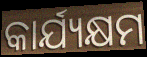
କାର୍ଯ୍ୟକ୍ଷମ